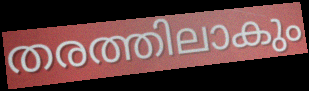
തരത്തിലാകും